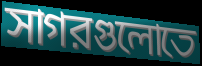
সাগরগুলোতে